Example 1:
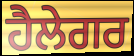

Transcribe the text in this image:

ਹੈਲੇਗਰ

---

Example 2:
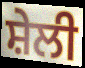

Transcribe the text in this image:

ਸ਼ੇਲੀ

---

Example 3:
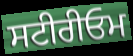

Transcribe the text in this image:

ਸਟੀਰੀਓਮ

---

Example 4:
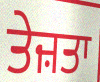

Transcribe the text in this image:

ਤੇਜ਼ਤਾ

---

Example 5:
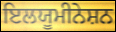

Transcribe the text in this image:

ਇਲਯੂਮੀਨੇਸ਼ਨ